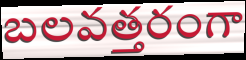
బలవత్తరంగా